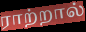
ராற்றால்